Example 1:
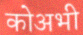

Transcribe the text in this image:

कोअभी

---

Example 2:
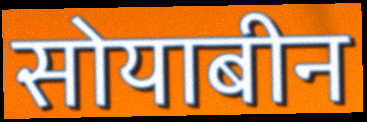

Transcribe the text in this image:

सोयाबीन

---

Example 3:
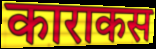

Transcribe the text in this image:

काराकस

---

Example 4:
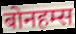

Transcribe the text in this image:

बोनहम्स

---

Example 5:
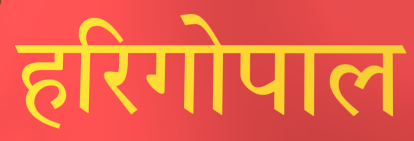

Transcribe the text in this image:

हरिगोपाल